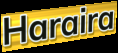
Haraira